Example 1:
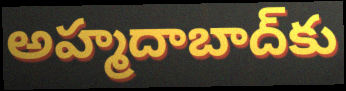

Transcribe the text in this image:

అహ్మదాబాద్‌కు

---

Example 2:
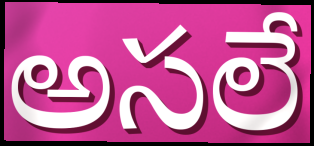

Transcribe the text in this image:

అసలే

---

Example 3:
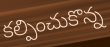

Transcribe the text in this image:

కల్పించుకొన్న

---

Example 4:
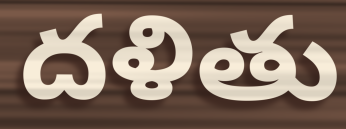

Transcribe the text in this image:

దళితు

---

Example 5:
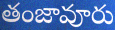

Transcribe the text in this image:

తంజావూరు